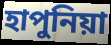
হাপুনিয়া